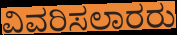
ವಿವರಿಸಲಾರರು